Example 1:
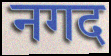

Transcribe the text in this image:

नगद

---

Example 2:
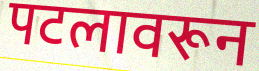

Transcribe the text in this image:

पटलावरून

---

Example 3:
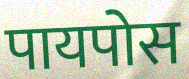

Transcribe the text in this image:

पायपोस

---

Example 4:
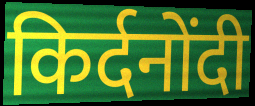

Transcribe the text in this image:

किर्दनोंदी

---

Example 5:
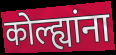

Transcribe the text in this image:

कोल्ह्यांना